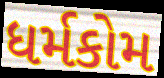
ધર્મકોમ